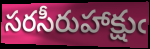
సరసీరుహాక్షుఁ